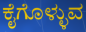
ಕೈಗೊಳ್ಳುವ